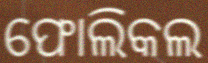
ଫୋଲିକଲ